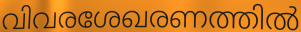
വിവരശേഖരണത്തിൽ